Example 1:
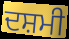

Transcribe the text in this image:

ਦਸ਼ਮੀ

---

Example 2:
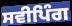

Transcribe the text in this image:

ਸਵੀਪਿੰਗ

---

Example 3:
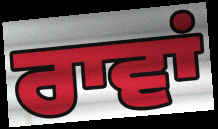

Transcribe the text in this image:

ਰਾਵਾਂ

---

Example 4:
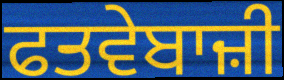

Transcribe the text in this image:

ਫਤਵੇਬਾਜ਼ੀ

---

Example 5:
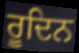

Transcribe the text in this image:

ਰੂਦਿਨ